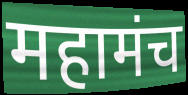
महामंच